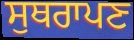
ਸੁਥਰਾਪਣ